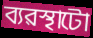
ব্যৱস্থাটো